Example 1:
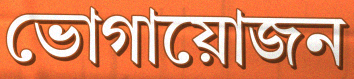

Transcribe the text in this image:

ভোগায়োজন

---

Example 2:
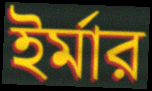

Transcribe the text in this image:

ইর্মার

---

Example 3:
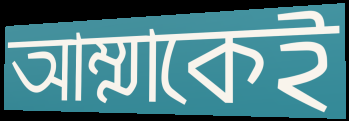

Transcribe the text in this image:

আম্মাকেই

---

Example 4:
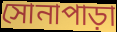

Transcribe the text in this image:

সোনাপাড়া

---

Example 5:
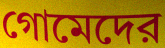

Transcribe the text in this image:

গোমেদের